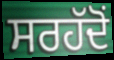
ਸਰਹੱਦੋਂ